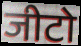
जीटो